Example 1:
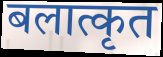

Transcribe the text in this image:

बलात्कृत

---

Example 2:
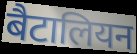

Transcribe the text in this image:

बैटालियन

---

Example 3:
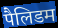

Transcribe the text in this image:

पैलिडम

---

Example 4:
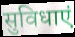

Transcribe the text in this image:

सुविधाएं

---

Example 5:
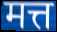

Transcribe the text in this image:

मत्त